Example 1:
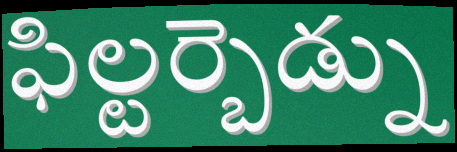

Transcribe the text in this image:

ఫిల్టర్బెడ్ను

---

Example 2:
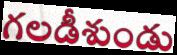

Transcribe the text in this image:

గలడీశుండు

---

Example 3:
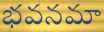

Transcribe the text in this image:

భవనమా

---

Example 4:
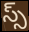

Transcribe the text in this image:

స్స్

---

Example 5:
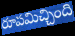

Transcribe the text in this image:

రూపమిచ్చింది